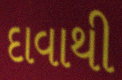
દાવાથી